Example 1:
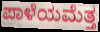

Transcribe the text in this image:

ಪಾಳೆಯಮೆತ್ತ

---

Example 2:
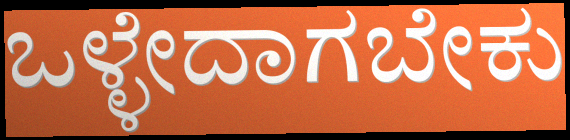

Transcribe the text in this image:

ಒಳ್ಳೇದಾಗಬೇಕು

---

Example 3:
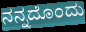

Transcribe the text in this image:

ನನ್ನದೊಂದು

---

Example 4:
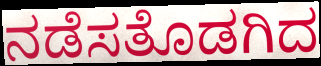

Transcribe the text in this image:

ನಡೆಸತೊಡಗಿದ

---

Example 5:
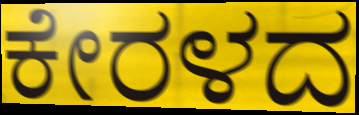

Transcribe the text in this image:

ಕೇರಳದ